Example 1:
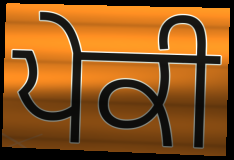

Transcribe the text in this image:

ਪੇਕੀ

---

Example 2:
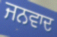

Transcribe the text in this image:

ਜਨਵਾਦ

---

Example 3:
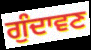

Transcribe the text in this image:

ਗੁੰਦਾਵਣ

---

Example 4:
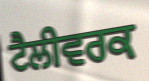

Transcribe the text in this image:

ਟੈਲੀਵਰਕ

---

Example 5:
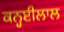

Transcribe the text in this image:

ਕਨ੍ਹਈਲਾਲ